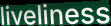
liveliness